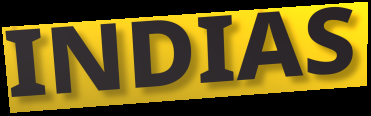
INDIAS